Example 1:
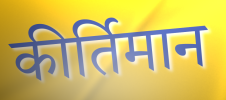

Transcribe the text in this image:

कीर्तिमान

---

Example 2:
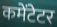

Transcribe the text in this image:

कमेंटेटर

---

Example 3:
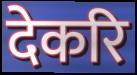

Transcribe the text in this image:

देकरि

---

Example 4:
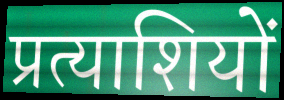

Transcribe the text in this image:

प्रत्‍याशियों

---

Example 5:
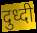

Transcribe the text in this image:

दुध्दी